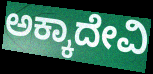
ಅಕ್ಕಾದೇವಿ